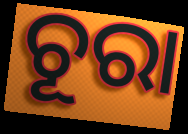
ଚୂରା